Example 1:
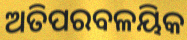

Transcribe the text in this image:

ଅତିପରବଳୟିକ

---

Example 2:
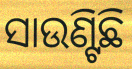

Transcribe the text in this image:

ସାଉଣ୍ଟିଛି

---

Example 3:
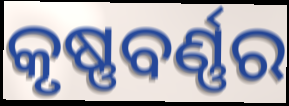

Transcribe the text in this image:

କୃଷ୍ଣବର୍ଣ୍ଣର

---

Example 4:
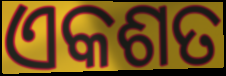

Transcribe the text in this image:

ଏକଶତ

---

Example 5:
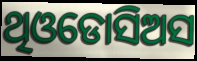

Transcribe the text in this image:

ଥିଓଡୋସିଅସ